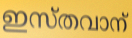
ഇസ്തവാന്